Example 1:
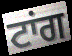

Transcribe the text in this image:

ਟਾਂਗ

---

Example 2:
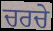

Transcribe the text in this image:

ਚਰਚੇ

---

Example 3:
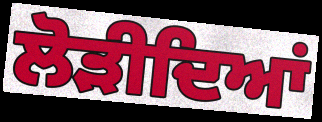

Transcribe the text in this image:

ਲੋੜੀਦਿਆਂ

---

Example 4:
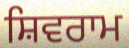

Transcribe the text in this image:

ਸ਼ਿਵਰਾਮ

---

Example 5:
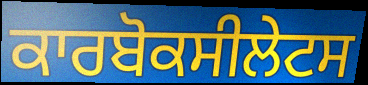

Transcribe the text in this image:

ਕਾਰਬੋਕਸੀਲੇਟਸ